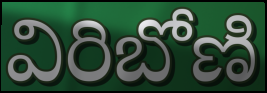
విరిబోణి